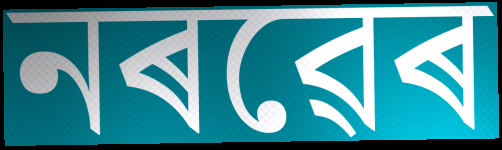
নৰৱেৰ